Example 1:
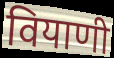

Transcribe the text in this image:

वियाणी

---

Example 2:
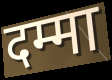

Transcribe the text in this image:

दम्मा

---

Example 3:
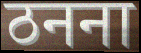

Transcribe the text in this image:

ठनना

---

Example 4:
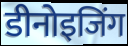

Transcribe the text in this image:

डीनोइजिंग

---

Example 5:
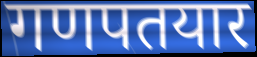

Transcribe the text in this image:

गणपतयार